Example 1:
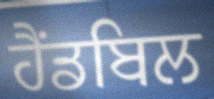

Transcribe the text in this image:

ਹੈਂਡਬਿਲ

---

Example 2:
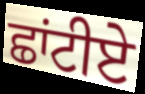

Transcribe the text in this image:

ਛਾਂਟੀਏ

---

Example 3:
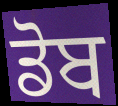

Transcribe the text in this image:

ਡੋਬ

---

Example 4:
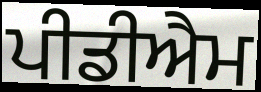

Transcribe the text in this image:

ਪੀਡੀਐਮ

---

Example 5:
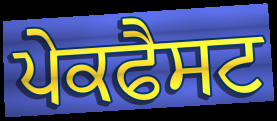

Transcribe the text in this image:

ਪੇਕਫੈਸਟ